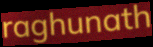
raghunath